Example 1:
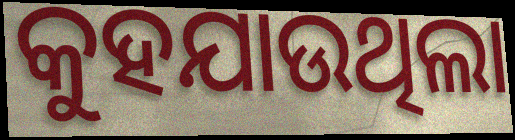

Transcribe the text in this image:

କୁହଯାଉଥିଲା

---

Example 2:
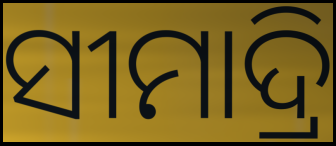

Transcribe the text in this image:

ସୀମାଦ୍ରି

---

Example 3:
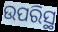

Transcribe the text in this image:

ଉପରିସ୍ଥ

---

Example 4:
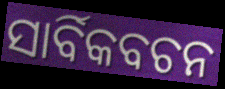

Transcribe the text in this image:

ସାର୍ବିକବଚନ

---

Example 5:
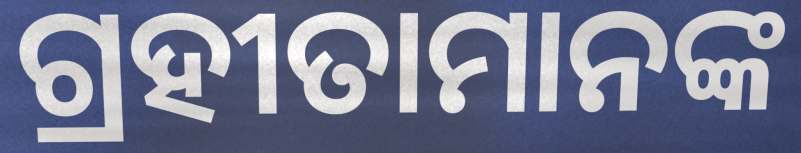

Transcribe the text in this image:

ଗ୍ରହୀତାମାନଙ୍କ